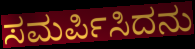
ಸಮರ್ಪಿಸಿದನು